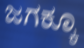
ಜಗಕ್ಕೂ